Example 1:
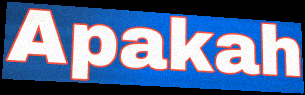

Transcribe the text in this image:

Apakah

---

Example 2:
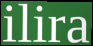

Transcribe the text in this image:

ilira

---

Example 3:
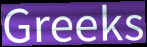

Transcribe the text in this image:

Greeks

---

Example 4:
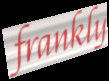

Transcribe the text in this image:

frankly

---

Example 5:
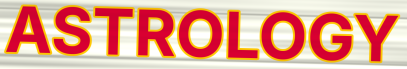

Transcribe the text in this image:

ASTROLOGY